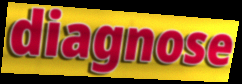
diagnose